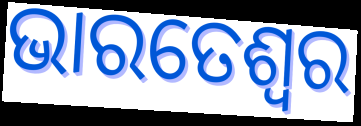
ଭାରତେଶ୍ୱର